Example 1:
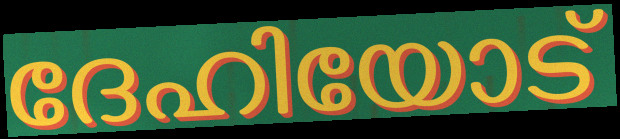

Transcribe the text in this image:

ദേഹിയോട്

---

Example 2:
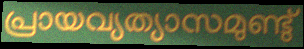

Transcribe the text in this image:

പ്രായവ്യത്യാസമുണ്ടു്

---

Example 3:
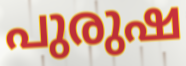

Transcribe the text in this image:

പുരുഷ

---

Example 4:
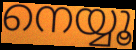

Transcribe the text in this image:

നെയ്യൂ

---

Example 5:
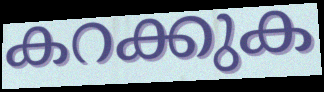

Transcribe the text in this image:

കറക്കുക